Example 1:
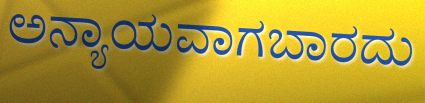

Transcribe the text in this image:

ಅನ್ಯಾಯವಾಗಬಾರದು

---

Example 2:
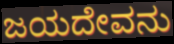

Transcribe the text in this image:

ಜಯದೇವನು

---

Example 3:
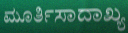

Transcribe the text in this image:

ಮೂರ್ತಿಸಾದಾಖ್ಯ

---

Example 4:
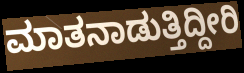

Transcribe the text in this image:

ಮಾತನಾಡುತ್ತಿದ್ದೀರಿ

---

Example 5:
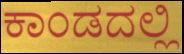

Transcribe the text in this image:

ಕಾಂಡದಲ್ಲಿ